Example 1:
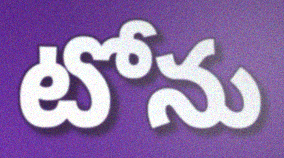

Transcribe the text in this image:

టోను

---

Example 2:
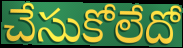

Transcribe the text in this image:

చేసుకోలేదో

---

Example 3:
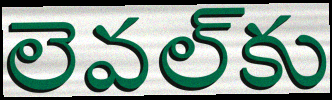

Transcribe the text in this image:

లెవల్‌కు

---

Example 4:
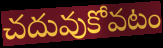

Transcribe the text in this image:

చదువుకోవటం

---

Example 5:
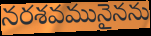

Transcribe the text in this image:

నరశవమునైనను